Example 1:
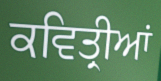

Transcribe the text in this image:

ਕਵਿਤ੍ਰੀਆਂ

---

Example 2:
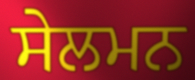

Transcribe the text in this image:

ਸੇਲਮਨ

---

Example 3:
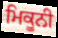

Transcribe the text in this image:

ਮਿਕੂਨੀ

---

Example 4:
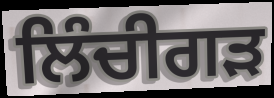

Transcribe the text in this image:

ਲਿੰਚੀਗੜ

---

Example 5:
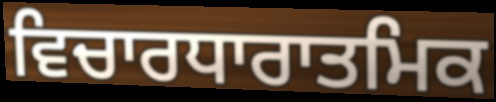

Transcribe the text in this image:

ਵਿਚਾਰਧਾਰਾਤਮਿਕ